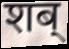
शब्